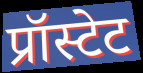
प्रॉस्टेट